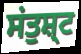
ਸਂਤੁਸ਼੍ਟ